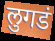
लुगडं